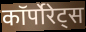
कॉर्पोरेट्स